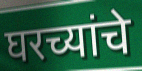
घरच्यांचे